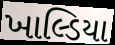
ખાલ્ડિયા